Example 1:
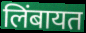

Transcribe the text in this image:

लिंबायत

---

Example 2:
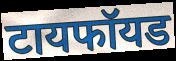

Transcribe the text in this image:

टायफॉयड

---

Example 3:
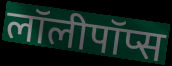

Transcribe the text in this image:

लॉलीपॉप्स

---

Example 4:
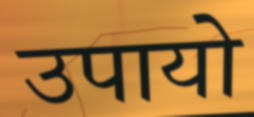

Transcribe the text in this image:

उपायो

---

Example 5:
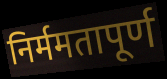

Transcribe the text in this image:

निर्ममतापूर्ण